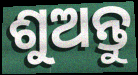
ଶୁଅନ୍ତୁ